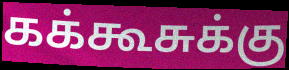
கக்கூசுக்கு